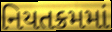
નિયતક્રમમાં